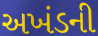
અખંડની